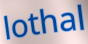
lothal